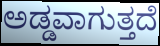
ಅಡ್ಡವಾಗುತ್ತದೆ